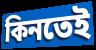
কিনতেই